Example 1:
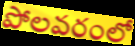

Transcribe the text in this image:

పోలవరంలో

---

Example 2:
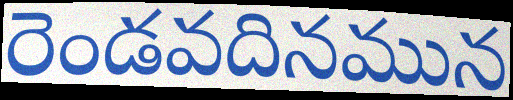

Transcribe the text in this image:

రెండవదినమున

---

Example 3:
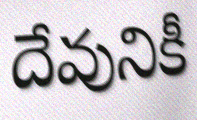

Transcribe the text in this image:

దేవునికీ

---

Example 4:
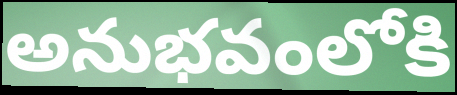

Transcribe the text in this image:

అనుభవంలోకి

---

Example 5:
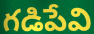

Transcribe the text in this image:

గడిపేవి